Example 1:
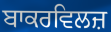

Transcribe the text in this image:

ਬਾਕਰਵਿਲਜ਼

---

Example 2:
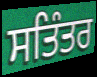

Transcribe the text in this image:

ਸਤਿੰਤਰ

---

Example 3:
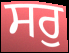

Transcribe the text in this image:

ਸਰੁ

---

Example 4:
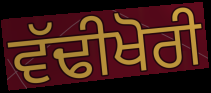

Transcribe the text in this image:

ਵੱਢੀਖੋਰੀ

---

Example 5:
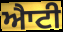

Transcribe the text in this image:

ਐਾਟੀ